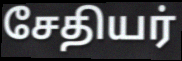
சேதியர்